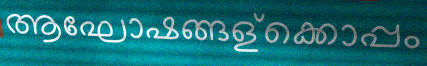
ആഘോഷങ്ങള്ക്കൊപ്പം